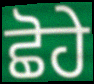
ਛੋਹੇ